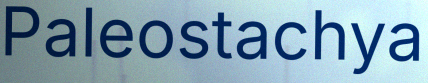
Paleostachya